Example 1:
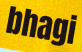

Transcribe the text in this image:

bhagi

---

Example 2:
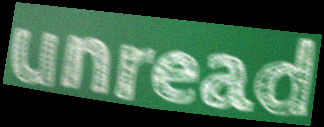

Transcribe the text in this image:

unread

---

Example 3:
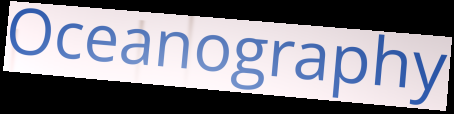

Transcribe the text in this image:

Oceanography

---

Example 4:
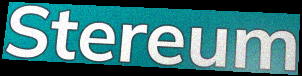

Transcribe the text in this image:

Stereum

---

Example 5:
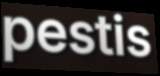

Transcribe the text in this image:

pestis